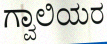
ಗ್ವಾಲಿಯರ